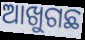
ଆଖୁଗଛ